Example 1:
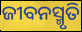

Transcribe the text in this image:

ଜୀବନସ୍ମୃତି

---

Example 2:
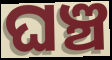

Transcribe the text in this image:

ଘଞ୍ଚ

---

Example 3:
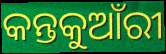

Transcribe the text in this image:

କନ୍ତକୁଆଁରୀ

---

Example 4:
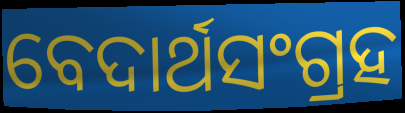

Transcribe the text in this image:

ବେଦାର୍ଥସଂଗ୍ରହ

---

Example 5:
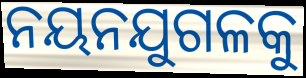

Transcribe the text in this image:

ନୟନଯୁଗଳକୁ